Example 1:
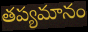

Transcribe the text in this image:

తప్యమానం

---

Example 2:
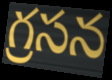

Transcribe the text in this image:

గ్రసన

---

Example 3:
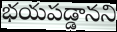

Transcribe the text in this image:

భయపడ్డానని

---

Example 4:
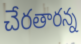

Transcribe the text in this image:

చేరతారన్న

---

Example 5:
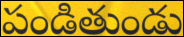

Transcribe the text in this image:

పండితుండు